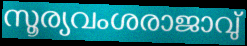
സൂര്യവംശരാജാവു്